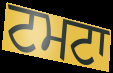
ਟਮਟਾ